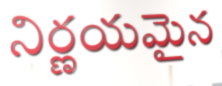
నిర్ణయమైన